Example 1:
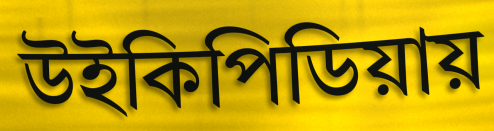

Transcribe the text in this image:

উইকিপিডিয়ায়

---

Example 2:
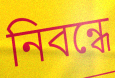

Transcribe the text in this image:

নিবন্ধে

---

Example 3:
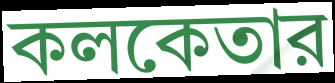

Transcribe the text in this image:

কলকেতার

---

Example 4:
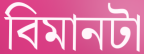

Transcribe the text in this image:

বিমানটা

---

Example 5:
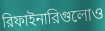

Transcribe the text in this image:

রিফাইনারিগুলোও